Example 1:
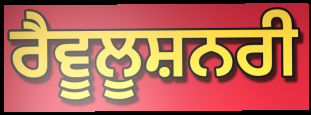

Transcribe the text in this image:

ਰੈਵੂਲੂਸ਼ਨਰੀ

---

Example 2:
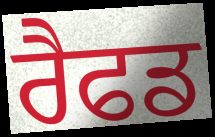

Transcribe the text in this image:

ਰੈਫਡ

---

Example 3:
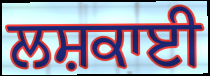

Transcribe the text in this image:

ਲਸ਼ਕਾਈ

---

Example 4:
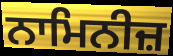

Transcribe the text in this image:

ਨਾਮਿਨੀਜ਼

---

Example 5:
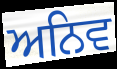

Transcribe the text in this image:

ਅਨਿਵ